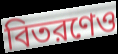
বিতরণেও